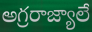
అగ్రరాజ్యాలే